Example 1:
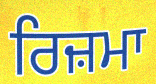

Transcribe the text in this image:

ਰਿਜ਼ਮਾ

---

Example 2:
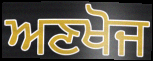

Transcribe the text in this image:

ਅਣਖੋਜ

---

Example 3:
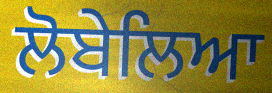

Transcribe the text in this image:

ਲੋਬੇਲਿਆ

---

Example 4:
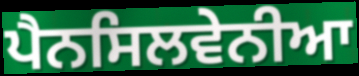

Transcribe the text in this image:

ਪੈਨਸਿਲਵੇਨੀਆ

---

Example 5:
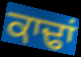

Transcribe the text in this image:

ਕਾਢਾਂ